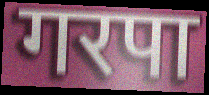
गरपा